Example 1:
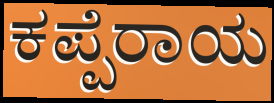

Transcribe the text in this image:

ಕಪ್ಪೆರಾಯ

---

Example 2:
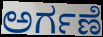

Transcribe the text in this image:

ಅರ್ಗಣೆ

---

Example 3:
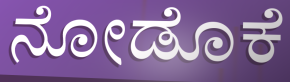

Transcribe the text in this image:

ನೋಡೊಕೆ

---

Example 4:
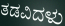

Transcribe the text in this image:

ತಡವಿದಳು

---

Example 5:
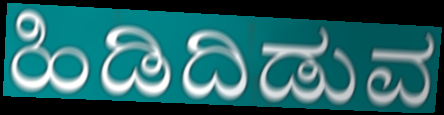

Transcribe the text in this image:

ಹಿಡಿದಿಡುವ